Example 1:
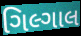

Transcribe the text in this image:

ગિલ્ગાલ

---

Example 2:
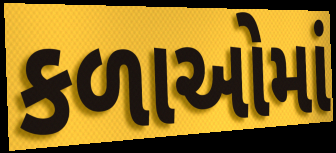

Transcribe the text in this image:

કળાઓમાં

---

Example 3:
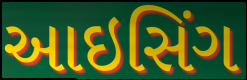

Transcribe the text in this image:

આઇસિંગ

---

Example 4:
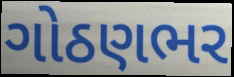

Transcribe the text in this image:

ગોઠણભર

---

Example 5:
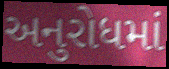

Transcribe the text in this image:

અનુરોધમાં